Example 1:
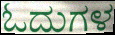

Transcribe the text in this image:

ಓದುಗಳ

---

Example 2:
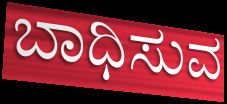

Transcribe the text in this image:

ಬಾಧಿಸುವ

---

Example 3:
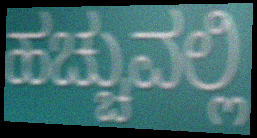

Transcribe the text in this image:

ಹಚ್ಚುವಲ್ಲಿ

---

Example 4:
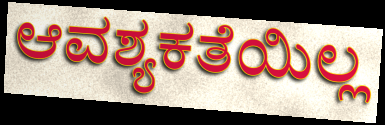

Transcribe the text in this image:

ಆವಶ್ಯಕತೆಯಿಲ್ಲ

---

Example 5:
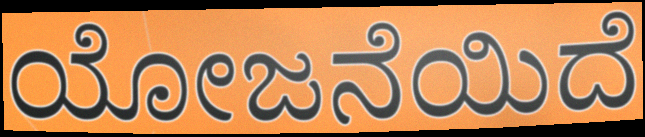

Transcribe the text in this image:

ಯೋಜನೆಯಿದೆ